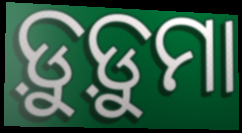
ଡ଼ୁଡ଼ୁମା